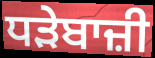
ਧੜੇਬਾਜ਼ੀ